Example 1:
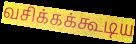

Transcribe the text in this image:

வசிக்கக்கூடிய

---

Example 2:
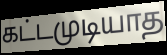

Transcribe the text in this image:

கட்டமுடியாத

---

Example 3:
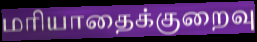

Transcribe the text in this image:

மரியாதைக்குறைவு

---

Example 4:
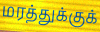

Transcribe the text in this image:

மரத்துக்குக்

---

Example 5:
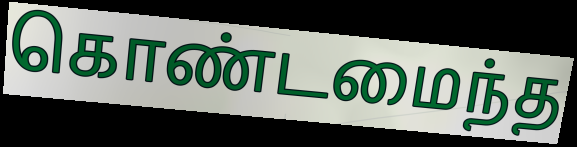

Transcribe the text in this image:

கொண்டமைந்த